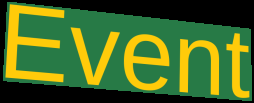
Event